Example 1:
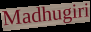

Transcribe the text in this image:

Madhugiri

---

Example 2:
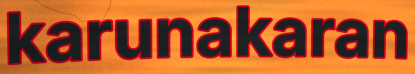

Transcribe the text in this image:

karunakaran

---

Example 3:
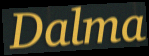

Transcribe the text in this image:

Dalma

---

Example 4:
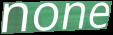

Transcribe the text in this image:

none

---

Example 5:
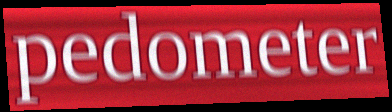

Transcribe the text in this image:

pedometer